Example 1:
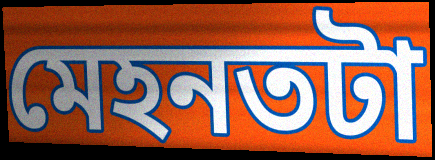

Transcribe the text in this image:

মেহনতটা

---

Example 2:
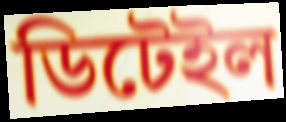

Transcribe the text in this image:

ডিটেইল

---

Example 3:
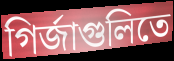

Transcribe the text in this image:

গির্জাগুলিতে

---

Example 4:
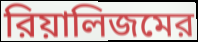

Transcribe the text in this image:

রিয়ালিজমের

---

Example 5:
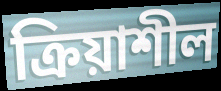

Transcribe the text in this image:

ক্রিয়াশীল